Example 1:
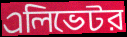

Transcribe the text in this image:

এলিভেটর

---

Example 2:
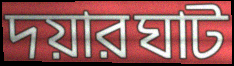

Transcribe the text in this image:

দয়ারঘাট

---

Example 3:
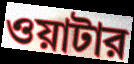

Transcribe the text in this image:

ওয়াটার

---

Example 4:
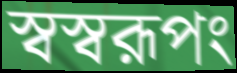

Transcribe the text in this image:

স্বস্বরূপং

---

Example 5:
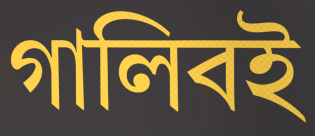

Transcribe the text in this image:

গালিবই